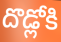
దొడ్లోకి